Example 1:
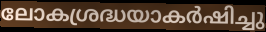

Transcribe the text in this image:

ലോകശ്രദ്ധയാകർഷിച്ചു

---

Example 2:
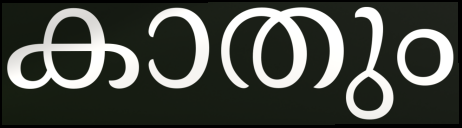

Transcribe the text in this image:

കാതും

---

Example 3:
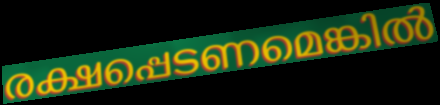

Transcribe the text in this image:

രക്ഷപ്പെടണമെങ്കിൽ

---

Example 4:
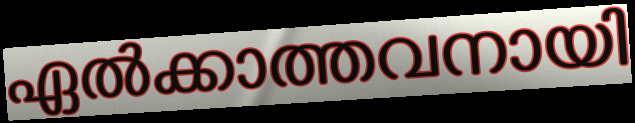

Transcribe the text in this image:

ഏൽക്കാത്തവനായി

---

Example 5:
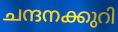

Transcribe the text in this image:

ചന്ദനക്കുറി